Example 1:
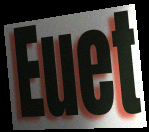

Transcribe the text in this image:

Euet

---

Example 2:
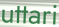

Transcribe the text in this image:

uttari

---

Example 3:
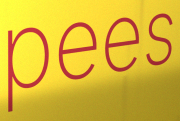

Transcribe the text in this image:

pees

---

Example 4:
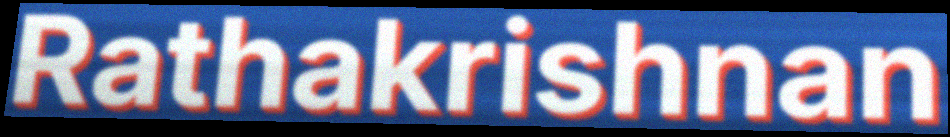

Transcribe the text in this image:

Rathakrishnan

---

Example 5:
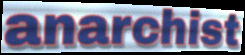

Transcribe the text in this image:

anarchist